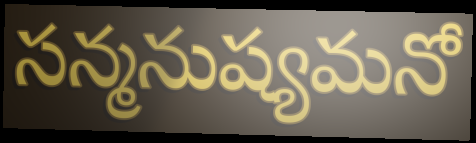
సన్మనుష్యమనో